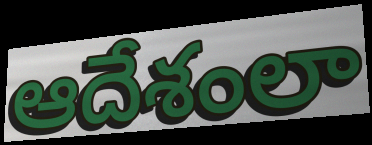
ఆదేశంలా